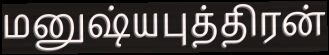
மனுஷ்யபுத்திரன்